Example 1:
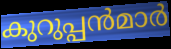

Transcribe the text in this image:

കുറുപ്പൻമാർ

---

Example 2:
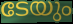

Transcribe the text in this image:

ടേയും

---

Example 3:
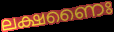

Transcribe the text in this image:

ലക്ഷണൈഃ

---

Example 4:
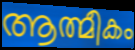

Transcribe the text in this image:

ആത്മീകം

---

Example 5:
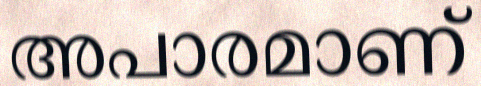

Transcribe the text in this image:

അപാരമാണ്